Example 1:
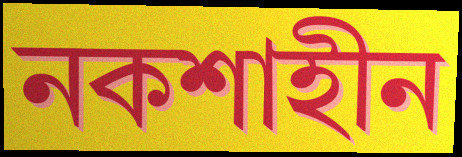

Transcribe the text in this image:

নকশাহীন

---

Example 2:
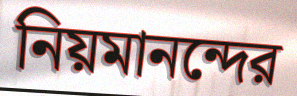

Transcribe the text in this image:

নিয়মানন্দের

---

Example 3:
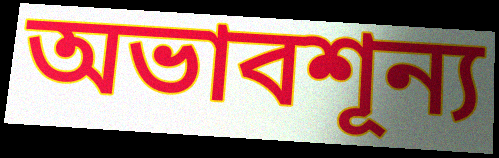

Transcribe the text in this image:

অভাবশূন্য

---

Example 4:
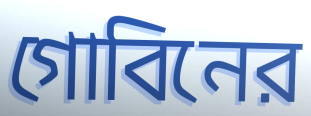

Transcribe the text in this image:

গোবিনের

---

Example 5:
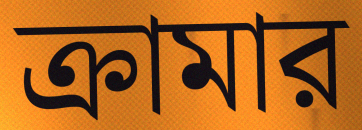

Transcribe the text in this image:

ক্রামার